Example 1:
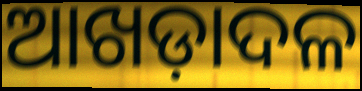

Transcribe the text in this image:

ଆଖଡ଼ାଦଳ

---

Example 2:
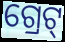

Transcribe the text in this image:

ଗ୍ରେଟ୍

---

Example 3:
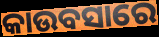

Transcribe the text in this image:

କାଉବସାରେ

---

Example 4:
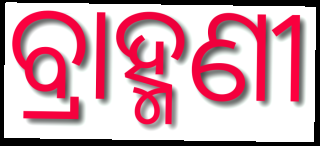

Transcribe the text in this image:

ବ୍ରାହ୍ମଣୀ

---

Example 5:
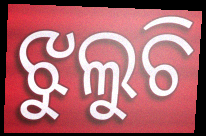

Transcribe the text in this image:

ଝୁଲୁଚି